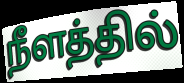
நீளத்தில்